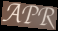
APR